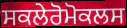
ਸਕਲੇਰੋਮੋਕਲਸ